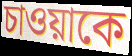
চাওয়াকে